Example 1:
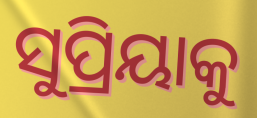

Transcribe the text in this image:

ସୁପ୍ରିୟାକୁ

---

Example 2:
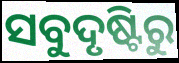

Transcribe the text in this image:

ସବୁଦୃଷ୍ଟିରୁ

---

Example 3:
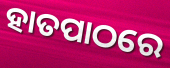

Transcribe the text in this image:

ହାତପାଠରେ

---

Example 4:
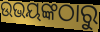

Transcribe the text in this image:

ଉଭୟଙ୍କଠାରୁ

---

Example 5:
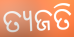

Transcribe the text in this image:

ତ୍ୟଜତି